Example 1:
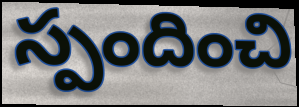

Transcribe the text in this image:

స్పందించి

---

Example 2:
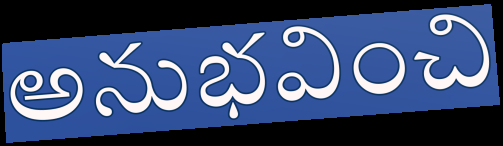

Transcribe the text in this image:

అనుభవించి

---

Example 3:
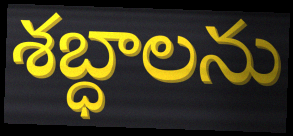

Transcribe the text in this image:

శబ్ధాలను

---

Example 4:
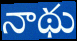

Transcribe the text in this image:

నాథు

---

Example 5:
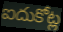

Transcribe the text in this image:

ఐదుకోట్ల